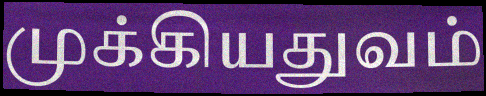
முக்கியதுவம்